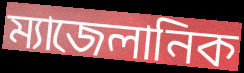
ম্যাজেলানিক